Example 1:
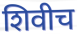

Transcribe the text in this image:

शिवीच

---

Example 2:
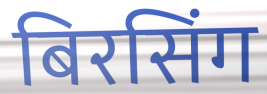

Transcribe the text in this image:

बिरसिंग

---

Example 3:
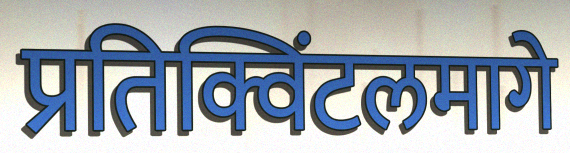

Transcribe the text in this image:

प्रतिक्विंटलमागे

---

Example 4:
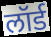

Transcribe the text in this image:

लॉर्ड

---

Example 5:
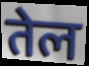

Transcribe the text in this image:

तेल